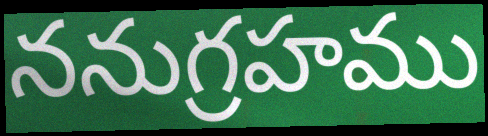
ననుగ్రహము